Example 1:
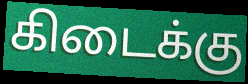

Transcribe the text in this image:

கிடைக்கு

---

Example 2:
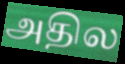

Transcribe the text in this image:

அதில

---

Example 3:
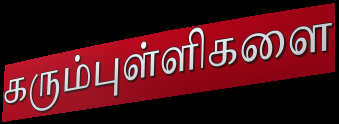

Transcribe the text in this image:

கரும்புள்ளிகளை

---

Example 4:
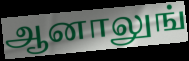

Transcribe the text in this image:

ஆனாலுங்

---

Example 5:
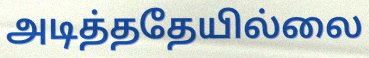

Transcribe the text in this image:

அடித்ததேயில்லை